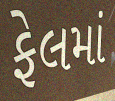
ફેલમાં